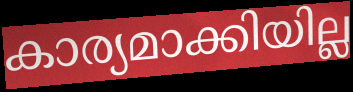
കാര്യമാക്കിയില്ല